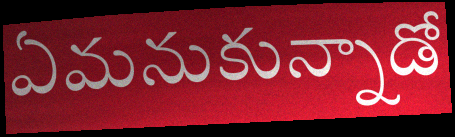
ఏమనుకున్నాడో